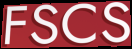
FSCS